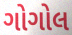
ગોગોલ